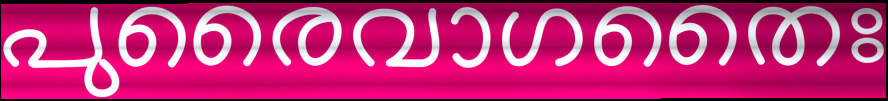
പുരൈവാഗതൈഃ